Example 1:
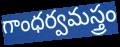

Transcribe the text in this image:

గాంధర్వమస్త్రం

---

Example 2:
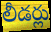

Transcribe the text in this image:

లీడర్లు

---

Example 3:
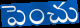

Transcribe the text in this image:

పెంచు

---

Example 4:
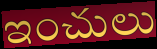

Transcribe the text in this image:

ఇంచులు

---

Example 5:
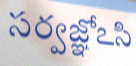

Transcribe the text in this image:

సర్వజ్ఞోఽసి